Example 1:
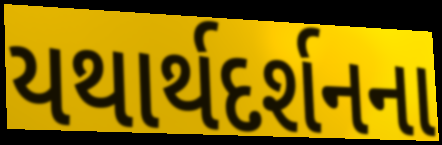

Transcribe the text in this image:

યથાર્થદર્શનના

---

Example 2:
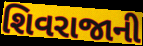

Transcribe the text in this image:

શિવરાજાની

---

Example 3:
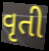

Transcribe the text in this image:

વૃતી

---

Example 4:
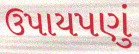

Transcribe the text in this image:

ઉપાયપણું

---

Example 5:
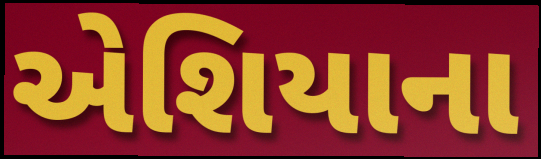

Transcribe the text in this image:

એશિયાના